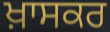
ਖ਼ਾਸਕਰ